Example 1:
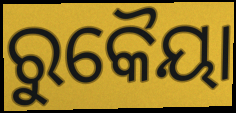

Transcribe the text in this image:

ରୁକୈୟା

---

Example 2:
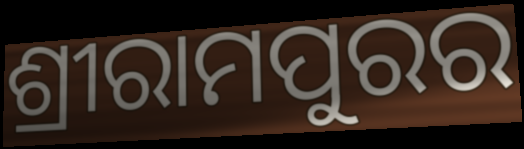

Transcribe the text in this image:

ଶ୍ରୀରାମପୁରର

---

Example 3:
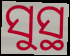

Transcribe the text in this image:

ସୁସ୍ଥ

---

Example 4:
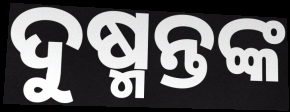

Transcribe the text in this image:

ଦୁଷ୍ମନ୍ତଙ୍କ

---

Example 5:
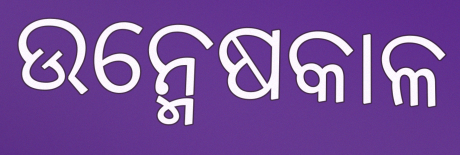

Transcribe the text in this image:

ଉନ୍ମେଷକାଳ